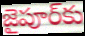
జైపూర్‌కు